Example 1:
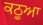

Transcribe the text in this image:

ਕਠੂਆ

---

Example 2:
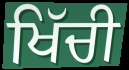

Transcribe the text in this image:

ਖਿੱਚੀ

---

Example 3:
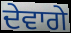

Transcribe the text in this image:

ਦੇਵਾਗੇ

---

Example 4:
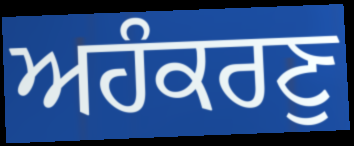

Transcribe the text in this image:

ਅਹੰਕਰਣੁ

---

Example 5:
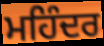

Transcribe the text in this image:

ਮਹਿੰਦਰ